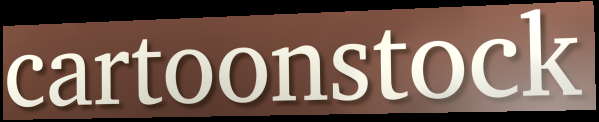
cartoonstock